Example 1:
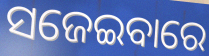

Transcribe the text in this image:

ସଜେଇବାରେ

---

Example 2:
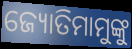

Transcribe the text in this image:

ଜ୍ୟୋତିମାମୁଙ୍କୁ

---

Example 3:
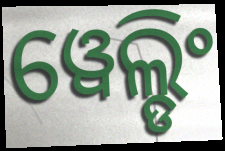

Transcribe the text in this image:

ୱେଲ୍ଡିଂ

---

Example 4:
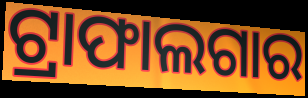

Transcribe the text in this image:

ଟ୍ରାଫାଲଗାର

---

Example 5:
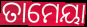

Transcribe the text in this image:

ତାମେୟା